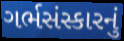
ગર્ભસંસ્કારનું